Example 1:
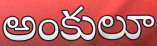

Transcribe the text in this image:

అంకులూ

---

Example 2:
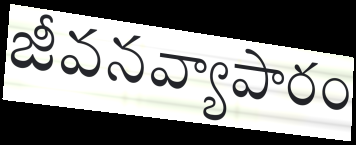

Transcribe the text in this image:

జీవనవ్యాపారం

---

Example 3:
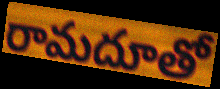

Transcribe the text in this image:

రామదూతో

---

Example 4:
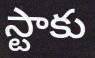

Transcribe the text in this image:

స్టాకు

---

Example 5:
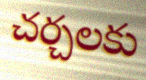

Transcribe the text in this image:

చర్చలకు